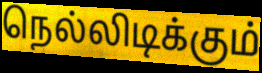
நெல்லிடிக்கும்